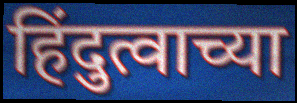
हिंदुत्वाच्या